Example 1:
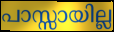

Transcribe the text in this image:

പാസ്സായില്ല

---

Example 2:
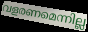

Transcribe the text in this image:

വളരണമെന്നില്ല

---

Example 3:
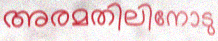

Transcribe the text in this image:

അരമതിലിനോടു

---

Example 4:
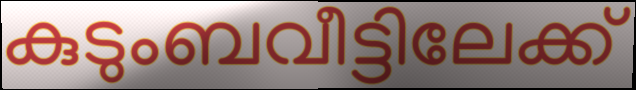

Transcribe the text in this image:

കുടുംബവീട്ടിലേക്ക്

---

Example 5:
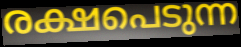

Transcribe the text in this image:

രക്ഷപെടുന്ന